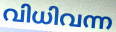
വിധിവന്ന